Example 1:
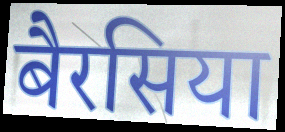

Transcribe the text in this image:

बैरसिया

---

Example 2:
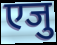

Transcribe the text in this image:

एजु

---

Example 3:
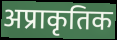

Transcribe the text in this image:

अप्राकृतिक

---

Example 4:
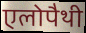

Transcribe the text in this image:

एलोपैथी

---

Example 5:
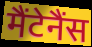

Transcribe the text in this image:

मैंटेनैंस